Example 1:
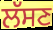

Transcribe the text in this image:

ਲੱਸਣ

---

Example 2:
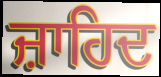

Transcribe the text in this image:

ਜ਼ਾਹਿਦ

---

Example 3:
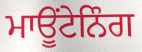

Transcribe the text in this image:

ਮਾਊਂਟੇਨਿੰਗ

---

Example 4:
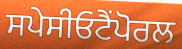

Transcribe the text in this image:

ਸਪੇਸੀਓਟੈਂਪੋਰਲ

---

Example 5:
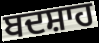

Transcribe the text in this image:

ਬਦਸ਼ਾਹ